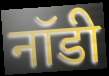
नॉडी